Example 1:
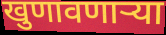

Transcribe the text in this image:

खुणावणाऱ्या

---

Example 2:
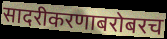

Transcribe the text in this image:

सादरीकरणाबरोबरच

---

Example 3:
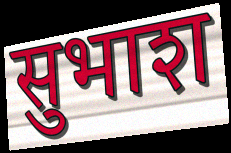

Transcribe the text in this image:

सुभाश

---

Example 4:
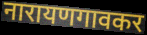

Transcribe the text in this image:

नारायणगावकर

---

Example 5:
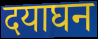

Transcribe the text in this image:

दयाघन